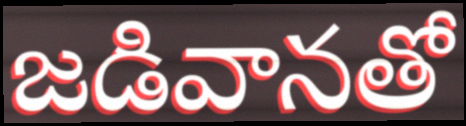
జడివానతో